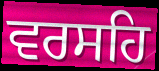
ਵਰਸਹਿ